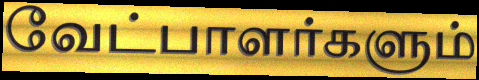
வேட்பாளர்களும்